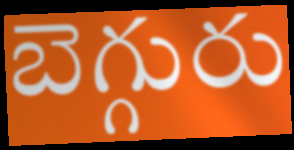
బెగ్గురు